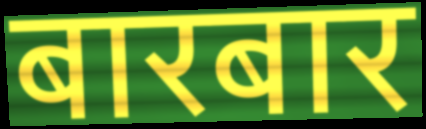
बारबार